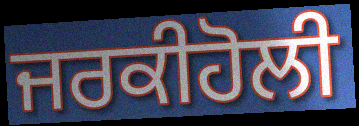
ਜਰਕੀਹੋਲੀ